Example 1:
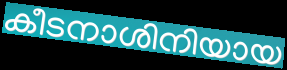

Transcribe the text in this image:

കീടനാശിനിയായ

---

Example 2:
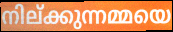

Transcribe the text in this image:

നില്ക്കുന്നമ്മയെ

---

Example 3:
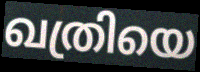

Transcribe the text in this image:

ഖത്രിയെ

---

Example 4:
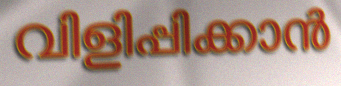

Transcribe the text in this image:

വിളിപ്പിക്കാൻ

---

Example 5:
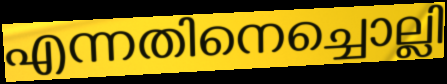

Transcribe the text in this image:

എന്നതിനെച്ചൊല്ലി